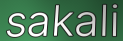
sakali